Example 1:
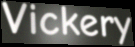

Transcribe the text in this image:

Vickery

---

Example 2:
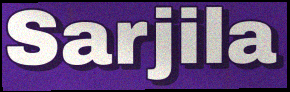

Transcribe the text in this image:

Sarjila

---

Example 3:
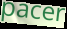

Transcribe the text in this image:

pacer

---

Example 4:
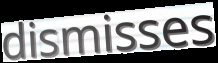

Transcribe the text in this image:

dismisses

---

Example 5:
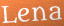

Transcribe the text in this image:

Lena